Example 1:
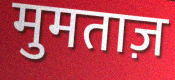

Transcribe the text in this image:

मुमताज़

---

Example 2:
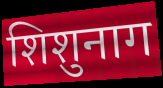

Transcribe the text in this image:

शिशुनाग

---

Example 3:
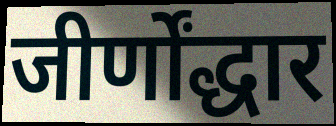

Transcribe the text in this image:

जीर्णोंद्धार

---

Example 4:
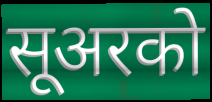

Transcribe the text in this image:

सूअरको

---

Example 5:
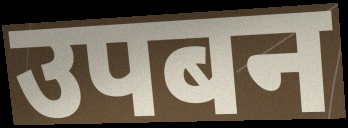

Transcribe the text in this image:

उपबन